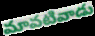
మావటివాడు